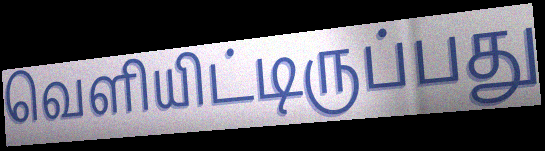
வெளியிட்டிருப்பது